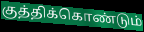
குத்திக்கொண்டும்